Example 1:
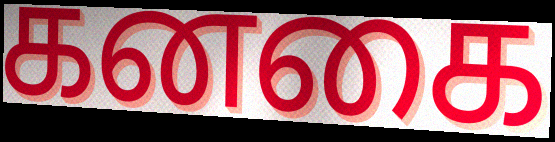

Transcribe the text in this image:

கனகை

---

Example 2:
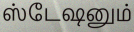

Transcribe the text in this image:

ஸ்டேஷனும்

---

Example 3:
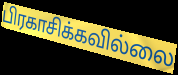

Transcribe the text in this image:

பிரகாசிக்கவில்லை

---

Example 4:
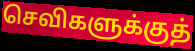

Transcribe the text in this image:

செவிகளுக்குத்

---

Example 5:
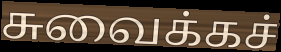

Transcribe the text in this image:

சுவைக்கச்